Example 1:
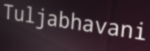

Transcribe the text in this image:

Tuljabhavani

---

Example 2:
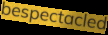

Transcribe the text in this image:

bespectacled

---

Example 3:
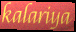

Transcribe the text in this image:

kalariya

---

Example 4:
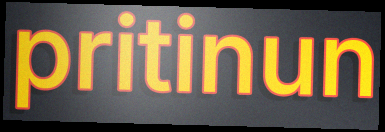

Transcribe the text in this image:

pritinun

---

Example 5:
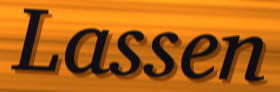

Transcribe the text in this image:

Lassen